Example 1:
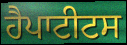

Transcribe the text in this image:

ਹੈਪਾਟੀਟਸ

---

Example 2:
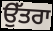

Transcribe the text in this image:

ਉੱਤਰਾ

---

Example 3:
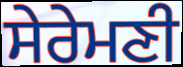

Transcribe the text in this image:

ਸੇਰੇਮਣੀ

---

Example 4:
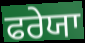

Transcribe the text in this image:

ਫਰੇਯਾ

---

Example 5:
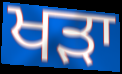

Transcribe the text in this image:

ਖਡ਼ਾ